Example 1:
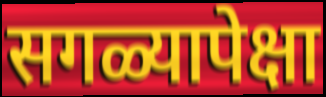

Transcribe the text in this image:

सगळ्यापेक्षा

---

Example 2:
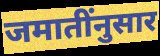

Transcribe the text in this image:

जमातींनुसार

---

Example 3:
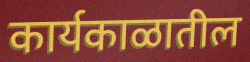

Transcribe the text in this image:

कार्यकाळातील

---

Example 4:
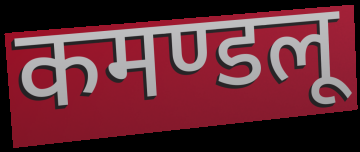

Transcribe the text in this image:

कमण्डलू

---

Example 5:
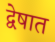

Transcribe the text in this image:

द्वेषात